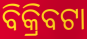
ବିକ୍ରିବଟା